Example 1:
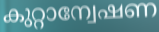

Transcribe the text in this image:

കുറ്റാന്വേഷണ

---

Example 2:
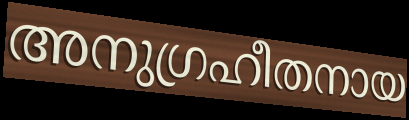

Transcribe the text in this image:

അനുഗ്രഹീതനായ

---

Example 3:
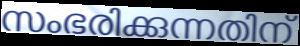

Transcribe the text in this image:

സംഭരിക്കുന്നതിന്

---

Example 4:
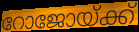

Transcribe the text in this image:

റോജോയ്ക്ക്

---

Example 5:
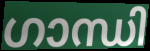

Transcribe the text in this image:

ഗാന്ധി